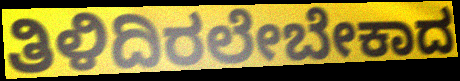
ತಿಳಿದಿರಲೇಬೇಕಾದ